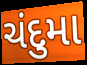
ચંદુમા